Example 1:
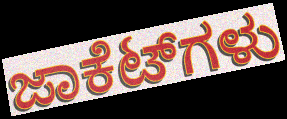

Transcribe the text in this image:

ಜಾಕೆಟ್‌ಗಳು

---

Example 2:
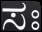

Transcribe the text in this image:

ಸಃ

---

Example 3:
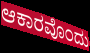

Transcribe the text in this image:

ಆಕಾರವೊಂದು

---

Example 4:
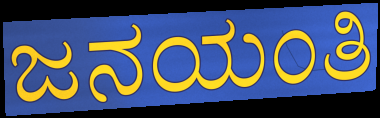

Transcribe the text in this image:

ಜನಯಂತಿ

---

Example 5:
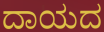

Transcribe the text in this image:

ದಾಯದ